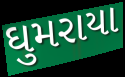
ઘુમરાયા